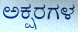
ಅಕ್ಷರಗಳ